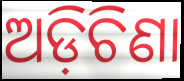
ଅଡ଼ିଚିଣା